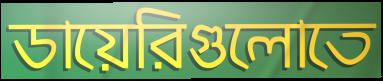
ডায়েরিগুলোতে